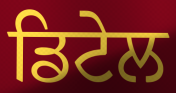
ਡਿਟੇਲ